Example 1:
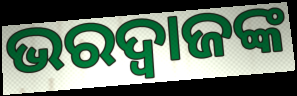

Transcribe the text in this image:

ଭରଦ୍ବାଜଙ୍କ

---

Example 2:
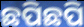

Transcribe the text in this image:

ଛପିଛପି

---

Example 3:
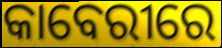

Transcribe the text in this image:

କାବେରୀରେ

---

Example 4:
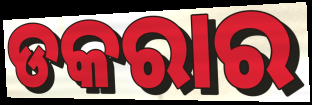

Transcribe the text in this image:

ଡକରାର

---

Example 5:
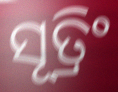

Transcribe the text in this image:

ସୂତ୍ରିଂ